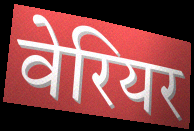
वेरियर